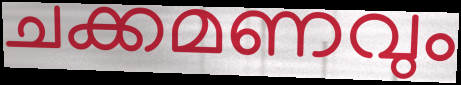
ചക്കമണവും